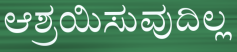
ಆಶ್ರಯಿಸುವುದಿಲ್ಲ